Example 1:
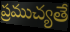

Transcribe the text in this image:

ప్రముచ్యతే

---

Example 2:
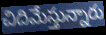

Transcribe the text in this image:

చిదిమేస్తున్నారు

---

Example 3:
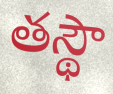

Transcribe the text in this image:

తస్థౌ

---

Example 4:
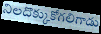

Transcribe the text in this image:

నిలదొక్కుకోగలిగాడు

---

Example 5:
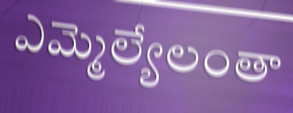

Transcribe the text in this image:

ఎమ్మెల్యేలంతా